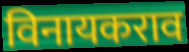
विनायकराव